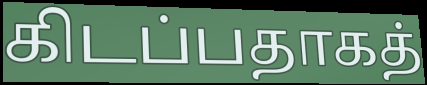
கிடப்பதாகத்